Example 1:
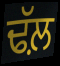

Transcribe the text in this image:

ਢੱਲ਼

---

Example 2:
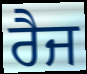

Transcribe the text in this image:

ਰੈਜ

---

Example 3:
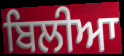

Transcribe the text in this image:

ਬਿਲੀਆ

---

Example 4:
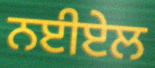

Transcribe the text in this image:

ਨਈਏਲ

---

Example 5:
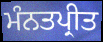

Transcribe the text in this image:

ਮੰਨਤਪ੍ਰੀਤ